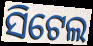
ସିଟେଲ